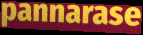
pannarase